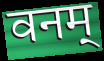
वनम्